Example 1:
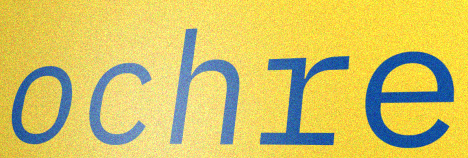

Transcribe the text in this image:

ochre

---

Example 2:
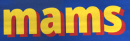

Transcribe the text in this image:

mams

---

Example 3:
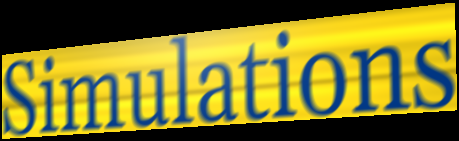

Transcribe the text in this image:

Simulations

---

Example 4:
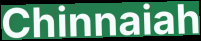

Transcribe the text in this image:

Chinnaiah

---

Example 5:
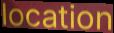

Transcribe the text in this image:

location